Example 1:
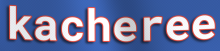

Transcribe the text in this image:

kacheree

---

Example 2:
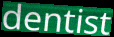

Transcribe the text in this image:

dentist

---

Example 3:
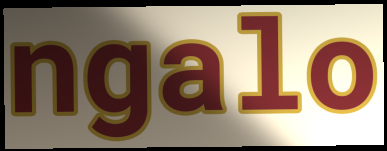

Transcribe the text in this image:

ngalo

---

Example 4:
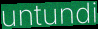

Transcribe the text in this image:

untundi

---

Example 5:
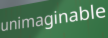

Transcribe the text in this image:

unimaginable